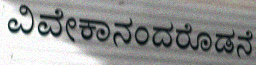
ವಿವೇಕಾನಂದರೊಡನೆ